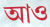
আও